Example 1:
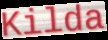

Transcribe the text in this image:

Kilda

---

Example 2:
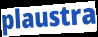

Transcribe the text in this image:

plaustra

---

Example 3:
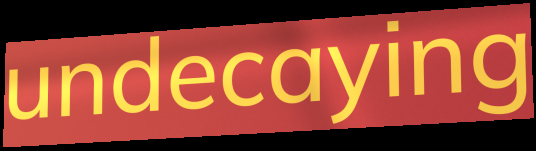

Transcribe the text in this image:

undecaying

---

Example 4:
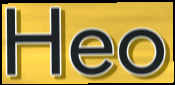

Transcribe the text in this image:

Heo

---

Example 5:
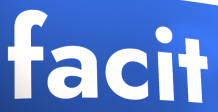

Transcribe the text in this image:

facit